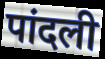
पांदली